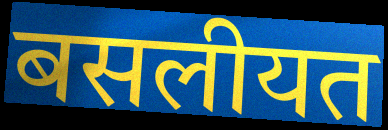
बसलीयत